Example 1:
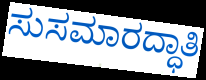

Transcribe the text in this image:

ಸುಸಮಾರದ್ಧಾತಿ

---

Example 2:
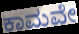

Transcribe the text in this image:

ಕಾಮವೇ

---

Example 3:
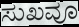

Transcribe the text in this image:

ಸುಖವೂ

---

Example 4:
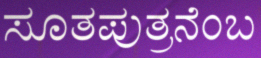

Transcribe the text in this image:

ಸೂತಪುತ್ರನೆಂಬ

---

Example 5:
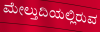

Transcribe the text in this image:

ಮೇಲ್ತುದಿಯಲ್ಲಿರುವ